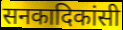
सनकादिकांसी